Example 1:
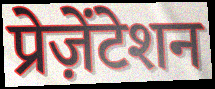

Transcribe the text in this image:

प्रेज़ेंटेशन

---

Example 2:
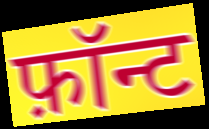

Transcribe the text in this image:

फ़ॉन्ट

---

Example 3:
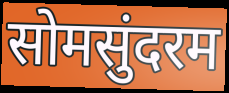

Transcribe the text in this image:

सोमसुंदरम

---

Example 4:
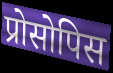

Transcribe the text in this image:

प्रोसोपिस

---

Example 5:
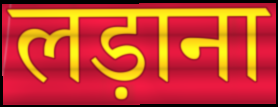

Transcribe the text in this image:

लड़ाना